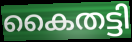
കൈതട്ടി